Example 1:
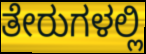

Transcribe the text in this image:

ತೇರುಗಳಲ್ಲಿ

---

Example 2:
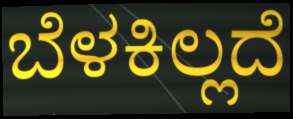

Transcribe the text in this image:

ಬೆಳಕಿಲ್ಲದೆ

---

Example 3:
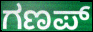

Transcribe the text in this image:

ಗಣಪ್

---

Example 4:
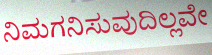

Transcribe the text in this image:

ನಿಮಗನಿಸುವುದಿಲ್ಲವೇ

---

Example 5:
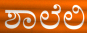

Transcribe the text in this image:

ಶಾಲೆಲಿ